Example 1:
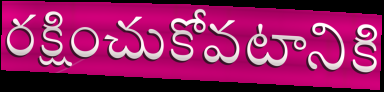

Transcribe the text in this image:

రక్షించుకోవటానికి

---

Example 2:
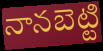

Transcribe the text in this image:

నానబెట్టి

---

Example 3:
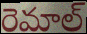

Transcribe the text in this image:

రెమాల్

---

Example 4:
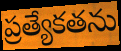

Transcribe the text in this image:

ప్రత్యేకతను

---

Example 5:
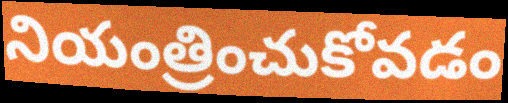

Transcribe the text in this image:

నియంత్రించుకోవడం